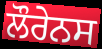
ਲੌਰੇਨਸ